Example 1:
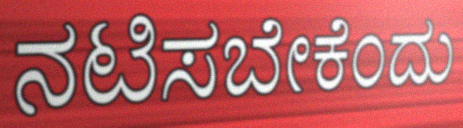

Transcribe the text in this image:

ನಟಿಸಬೇಕೆಂದು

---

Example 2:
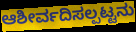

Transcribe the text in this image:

ಆಶೀರ್ವದಿಸಲ್ಪಟ್ಟನು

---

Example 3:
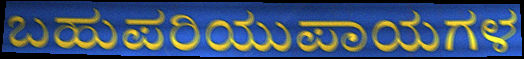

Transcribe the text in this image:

ಬಹುಪರಿಯುಪಾಯಗಳ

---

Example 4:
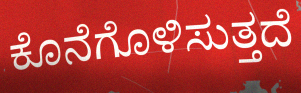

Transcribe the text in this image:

ಕೊನೆಗೊಳಿಸುತ್ತದೆ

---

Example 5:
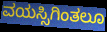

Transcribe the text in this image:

ವಯಸ್ಸಿಗಿಂತಲೂ